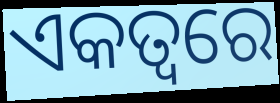
ଏକତ୍ୱରେ